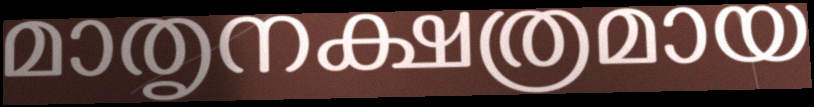
മാതൃനക്ഷത്രമായ